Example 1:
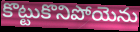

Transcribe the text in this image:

కొట్టుకొనిపోయెను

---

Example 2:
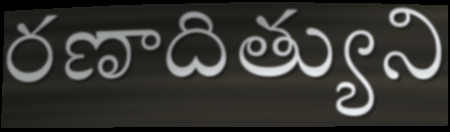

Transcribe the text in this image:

రణాదిత్యుని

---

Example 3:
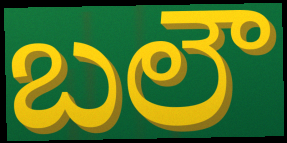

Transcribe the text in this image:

బలౌ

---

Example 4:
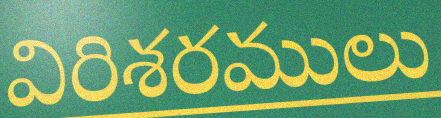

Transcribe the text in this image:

విరిశరములు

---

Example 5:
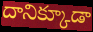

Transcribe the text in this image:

దానిక్కూడా